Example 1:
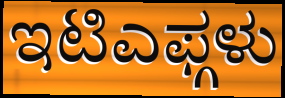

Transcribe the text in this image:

ಇಟಿಎಫ್ಗಳು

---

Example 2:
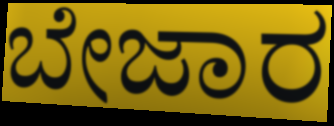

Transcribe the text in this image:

ಬೇಜಾರ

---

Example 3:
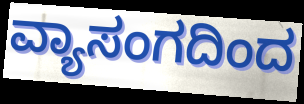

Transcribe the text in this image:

ವ್ಯಾಸಂಗದಿಂದ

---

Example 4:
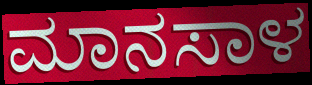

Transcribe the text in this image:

ಮಾನಸಾಳ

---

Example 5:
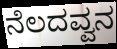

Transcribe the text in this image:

ನೆಲದವ್ವನ